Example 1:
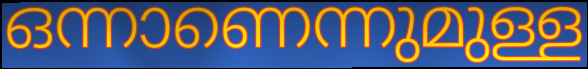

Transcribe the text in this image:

ഒന്നാണെന്നുമുള്ള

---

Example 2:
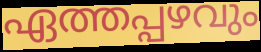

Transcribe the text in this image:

ഏത്തപ്പഴവും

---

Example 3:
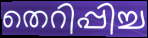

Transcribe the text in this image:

തെറിപ്പിച്ച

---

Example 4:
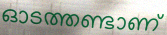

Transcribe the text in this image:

ഓടത്തണ്ടാണ്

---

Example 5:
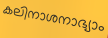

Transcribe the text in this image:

കലിനാശനാഭ്യാം